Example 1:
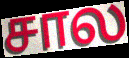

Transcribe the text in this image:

சால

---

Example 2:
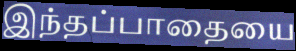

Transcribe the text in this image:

இந்தப்பாதையை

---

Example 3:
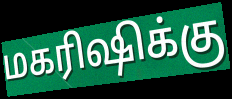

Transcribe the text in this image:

மகரிஷிக்கு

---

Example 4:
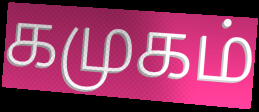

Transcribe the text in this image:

கமுகம்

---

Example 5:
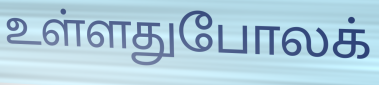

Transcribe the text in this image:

உள்ளதுபோலக்